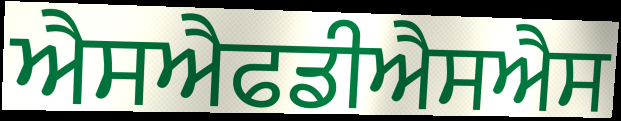
ਐਸਐਫਡੀਐਸਐਸ